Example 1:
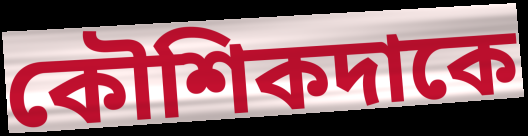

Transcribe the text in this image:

কৌশিকদাকে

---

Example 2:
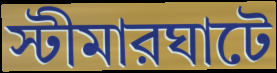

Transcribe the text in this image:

স্টীমারঘাটে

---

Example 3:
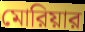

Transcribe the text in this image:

মোরিয়ার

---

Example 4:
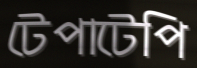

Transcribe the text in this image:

টেপাটেপি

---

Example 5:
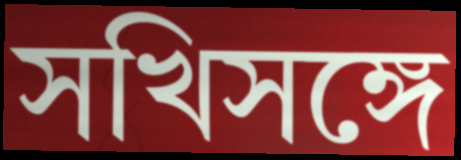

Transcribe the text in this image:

সখিসঙ্গে